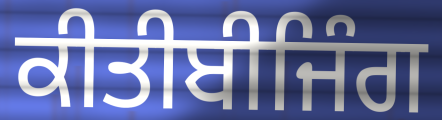
ਕੀਤੀਬੀਜਿੰਗ